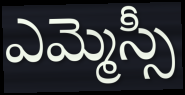
ఎమ్మెస్సీ